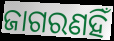
ଜାଗରଣହିଁ